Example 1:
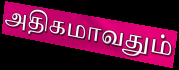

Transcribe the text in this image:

அதிகமாவதும்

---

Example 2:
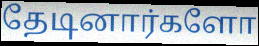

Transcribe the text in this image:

தேடினார்களோ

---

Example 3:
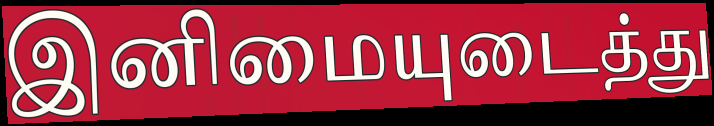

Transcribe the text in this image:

இனிமையுடைத்து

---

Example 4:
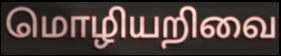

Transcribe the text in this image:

மொழியறிவை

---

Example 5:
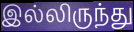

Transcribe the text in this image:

இல்லிருந்து